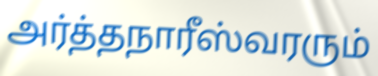
அர்த்தநாரீஸ்வரரும்